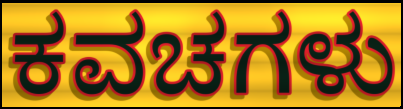
ಕವಚಗಳು